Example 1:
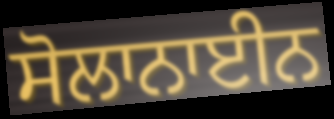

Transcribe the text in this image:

ਸੋਲਾਨਾਈਨ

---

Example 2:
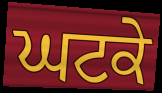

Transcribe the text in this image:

ਘਟਕੇ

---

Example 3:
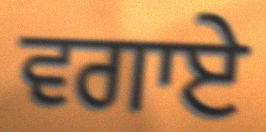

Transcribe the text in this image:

ਵਗਾਏ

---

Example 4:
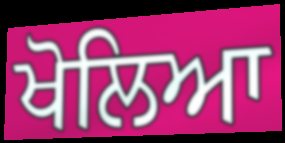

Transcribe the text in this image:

ਖੋਲਿਆ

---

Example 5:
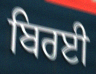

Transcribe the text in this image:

ਬਿਰਈ